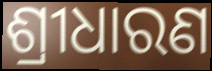
ଶ୍ରୀଧାରଣ